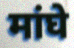
मांघे